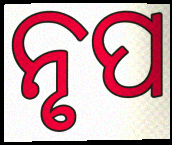
ନୃପ